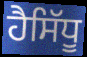
ਹੈਸਿੱਧੂ